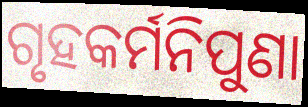
ଗୃହକର୍ମନିପୁଣା